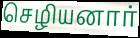
செழியனார்